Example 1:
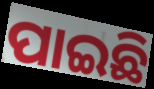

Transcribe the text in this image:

ପାଇଛି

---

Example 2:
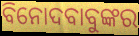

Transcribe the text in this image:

ବିନୋଦବାବୁଙ୍କର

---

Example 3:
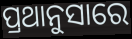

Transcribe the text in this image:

ପ୍ରଥାନୁସାରେ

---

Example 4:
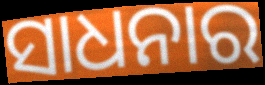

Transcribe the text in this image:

ସାଧନାର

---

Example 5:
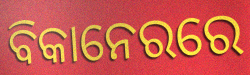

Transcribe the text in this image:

ବିକାନେରରେ